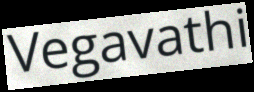
Vegavathi